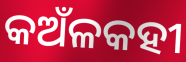
କଅଁଳକହୀ